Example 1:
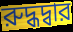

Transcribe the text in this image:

রুদ্ধদ্বার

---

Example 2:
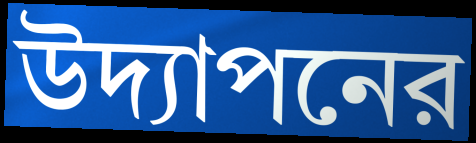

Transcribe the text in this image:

উদ্যাপনের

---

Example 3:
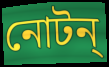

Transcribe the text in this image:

নোটন্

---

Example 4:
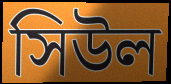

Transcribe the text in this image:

সিউল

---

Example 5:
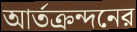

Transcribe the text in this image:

আর্তক্রন্দনের